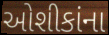
ઓશીકાંના